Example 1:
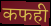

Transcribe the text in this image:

कफही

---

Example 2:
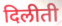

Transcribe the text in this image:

दिलीती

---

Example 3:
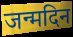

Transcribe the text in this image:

जन्मदिन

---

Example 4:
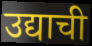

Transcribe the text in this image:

उद्याची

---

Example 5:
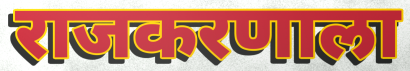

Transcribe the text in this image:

राजकरणाला